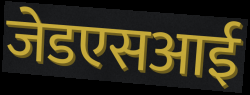
जेडएसआई